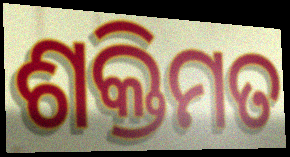
ଶକ୍ତିମତ